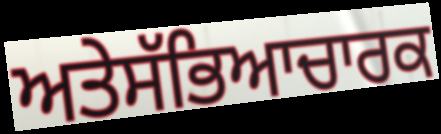
ਅਤੇਸੱਭਿਆਚਾਰਕ